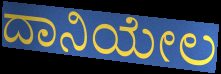
ದಾನಿಯೇಲ